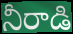
నీరాడి